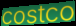
costco